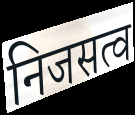
निजसत्व